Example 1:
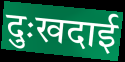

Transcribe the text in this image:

दुःखदाई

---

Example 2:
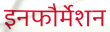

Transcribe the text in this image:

इनफौर्मेशन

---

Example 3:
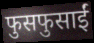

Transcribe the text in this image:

फुसफुसाईं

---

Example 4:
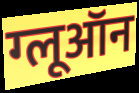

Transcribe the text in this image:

ग्लूऑन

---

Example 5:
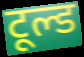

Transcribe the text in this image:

टूल्ड